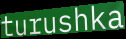
turushka